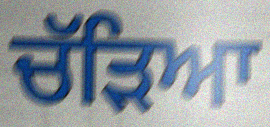
ਚੱੜਿਆ